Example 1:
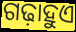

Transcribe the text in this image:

ଗଢ଼ାହୁଏ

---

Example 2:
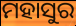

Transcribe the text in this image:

ମହାସୁର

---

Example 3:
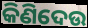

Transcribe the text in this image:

କିଣିଦେଉ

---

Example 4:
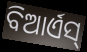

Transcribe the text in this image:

ବିଆର୍ଏସ୍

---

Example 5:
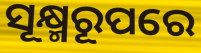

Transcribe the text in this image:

ସୂକ୍ଷ୍ମରୂପରେ